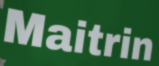
Maitrin